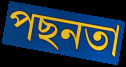
পছনতা